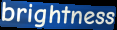
brightness